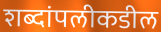
शब्दांपलीकडील